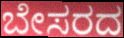
ಬೇಸರದ